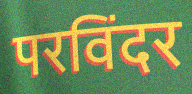
परविंदर